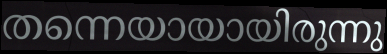
തന്നെയായായിരുന്നു